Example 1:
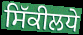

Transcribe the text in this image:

ਸਿੱਕੀਲਧੇ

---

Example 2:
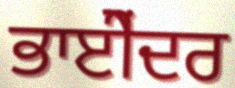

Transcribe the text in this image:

ਭਾਈੇਂਦਰ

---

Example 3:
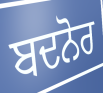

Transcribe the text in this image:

ਬਦਨੋਰ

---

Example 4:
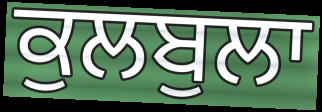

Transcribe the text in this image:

ਕੁਲਬੁਲਾ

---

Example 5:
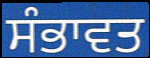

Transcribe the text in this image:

ਸੰਭਾਵਤ